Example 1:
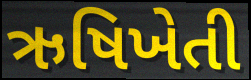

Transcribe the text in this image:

ઋષિખેતી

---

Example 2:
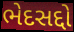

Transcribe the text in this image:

ભેદસદ્દો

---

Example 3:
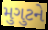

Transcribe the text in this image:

મુગુટને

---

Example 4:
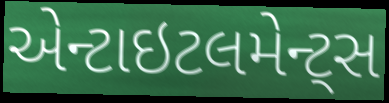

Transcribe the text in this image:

એન્ટાઇટલમેન્ટ્સ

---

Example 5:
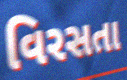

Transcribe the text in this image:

વિરસતા